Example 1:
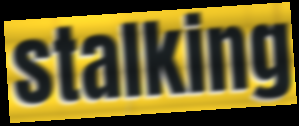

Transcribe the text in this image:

stalking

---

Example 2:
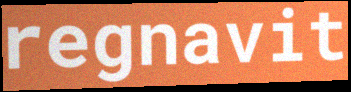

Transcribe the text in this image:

regnavit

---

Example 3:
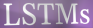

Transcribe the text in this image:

LSTMs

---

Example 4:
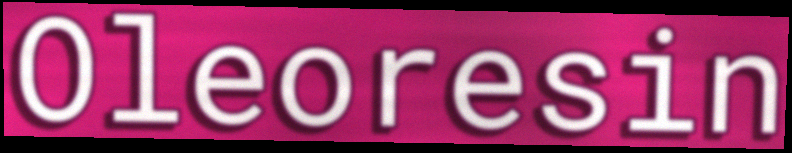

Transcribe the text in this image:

Oleoresin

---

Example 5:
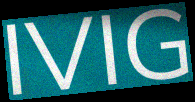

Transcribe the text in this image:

IVIG